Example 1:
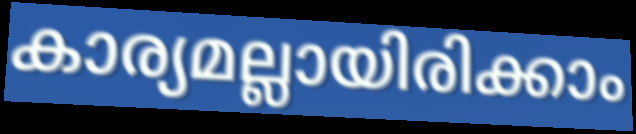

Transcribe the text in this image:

കാര്യമല്ലായിരിക്കാം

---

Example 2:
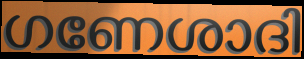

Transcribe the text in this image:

ഗണേശാദി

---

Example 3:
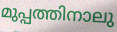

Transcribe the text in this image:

മുപ്പത്തിനാലു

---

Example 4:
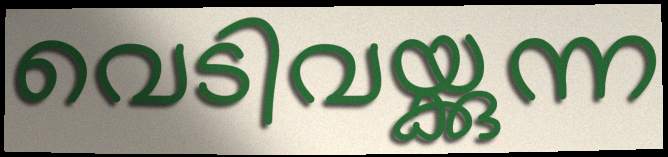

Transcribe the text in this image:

വെടിവയ്ക്കുന്ന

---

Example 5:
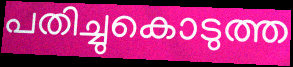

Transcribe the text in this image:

പതിച്ചുകൊടുത്ത